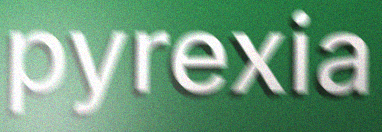
pyrexia